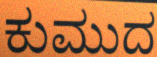
ಕುಮುದ